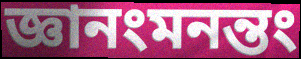
জ্ঞানংমনন্তং